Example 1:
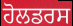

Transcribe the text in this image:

ਹੋਲਡਰਸ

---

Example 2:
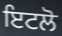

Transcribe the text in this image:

ਇਟਲੋ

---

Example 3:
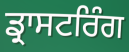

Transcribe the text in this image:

ਡ੍ਰਾਸਟਰਿੰਗ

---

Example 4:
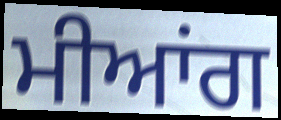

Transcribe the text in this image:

ਮੀਆਂਗ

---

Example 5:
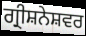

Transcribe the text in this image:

ਗ੍ਰੀਸ਼ਨੇਸ਼ਵਰ